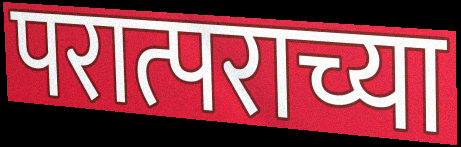
परात्पराच्या